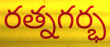
రత్నగర్భ